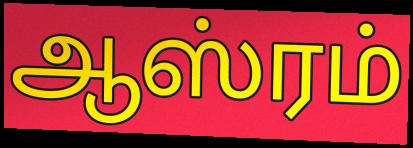
ஆஸ்ரம்